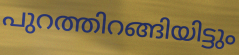
പുറത്തിറങ്ങിയിട്ടും